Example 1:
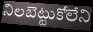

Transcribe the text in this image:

నిలబెట్టుకోలేని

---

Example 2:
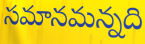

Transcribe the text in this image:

సమానమన్నది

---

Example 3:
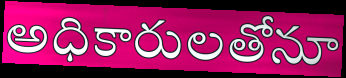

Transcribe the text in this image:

అధికారులతోనూ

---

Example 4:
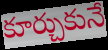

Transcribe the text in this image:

కూర్చుకునే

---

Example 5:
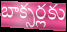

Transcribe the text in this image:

బాక్సర్లకు